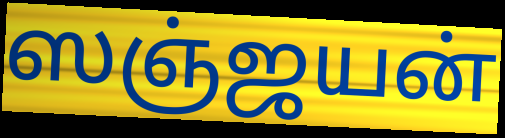
ஸஞ்ஜயன்